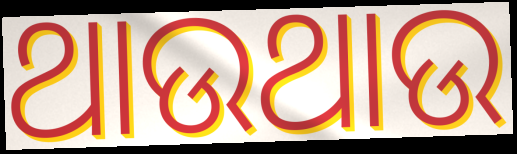
ଥାଉଥାଉ